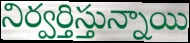
నిర్వర్తిస్తున్నాయి